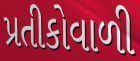
પ્રતીકોવાળી